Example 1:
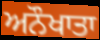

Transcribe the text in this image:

ਅਨੌਖਾਤਾ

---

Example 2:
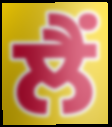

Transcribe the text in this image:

ਲੈਂ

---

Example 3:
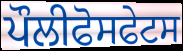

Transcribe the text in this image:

ਪੌਲੀਫੋਸਫੇਟਸ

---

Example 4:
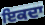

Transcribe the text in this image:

ਇਕਦਾ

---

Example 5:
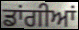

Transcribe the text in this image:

ਡਾਂਗੀਆਂ